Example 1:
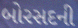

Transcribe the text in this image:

બોરસદની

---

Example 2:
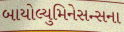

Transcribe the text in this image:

બાયોલ્યુમિનેસન્સના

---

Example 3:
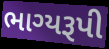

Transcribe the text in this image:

ભાગ્યરૂપી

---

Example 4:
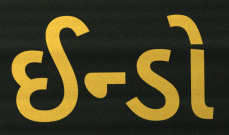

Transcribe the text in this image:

ઈન્ડો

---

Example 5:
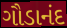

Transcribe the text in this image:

ગૌડાનંદ